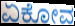
ಏಕೋವ